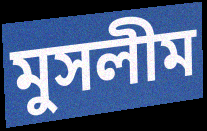
মুসলীম